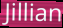
Jillian